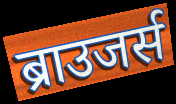
ब्राउजर्स